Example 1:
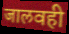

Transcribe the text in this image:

जालवही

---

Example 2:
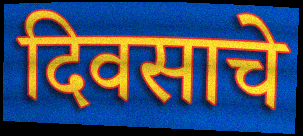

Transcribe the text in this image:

दिवसाचे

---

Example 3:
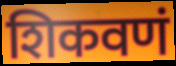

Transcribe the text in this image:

शिकवणं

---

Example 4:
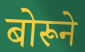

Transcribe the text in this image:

बोरूने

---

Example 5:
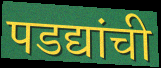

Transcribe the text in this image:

पडद्यांची